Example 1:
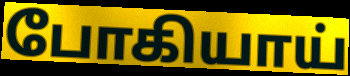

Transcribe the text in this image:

போகியாய்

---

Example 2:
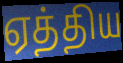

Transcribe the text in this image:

ஏத்திய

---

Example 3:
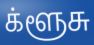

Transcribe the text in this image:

க்ளூசு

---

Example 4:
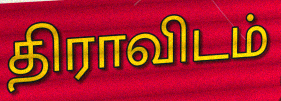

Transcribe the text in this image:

திராவிடம்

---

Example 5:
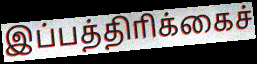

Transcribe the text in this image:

இப்பத்திரிக்கைச்